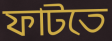
ফাটতে